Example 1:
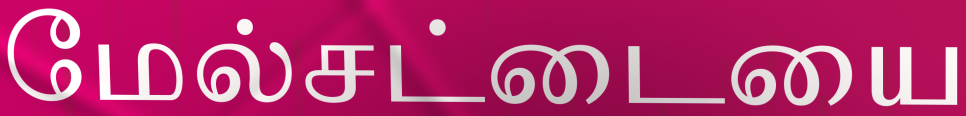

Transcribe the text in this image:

மேல்சட்டையை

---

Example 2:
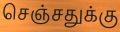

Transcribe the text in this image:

செஞ்சதுக்கு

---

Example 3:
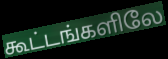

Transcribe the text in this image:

கூட்டங்களிலே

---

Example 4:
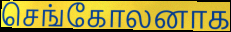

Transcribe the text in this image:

செங்கோலனாக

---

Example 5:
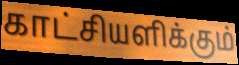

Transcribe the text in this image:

காட்சியளிக்கும்